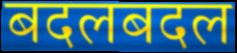
बदलबदल